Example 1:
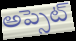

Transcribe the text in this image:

అప్సెట్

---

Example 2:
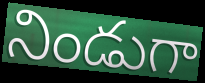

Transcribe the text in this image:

నిండుగా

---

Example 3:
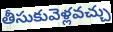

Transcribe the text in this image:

తీసుకువెళ్లవచ్చు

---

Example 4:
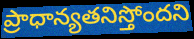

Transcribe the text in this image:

ప్రాధాన్యతనిస్తోందని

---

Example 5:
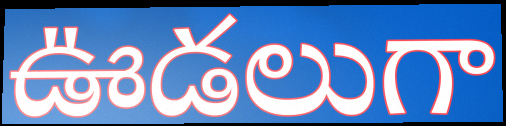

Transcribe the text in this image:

ఊడలుగా